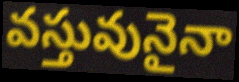
వస్తువునైనా